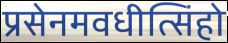
प्रसेनमवधीत्सिंहो